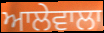
ਆਲੇਵਾਲਾ